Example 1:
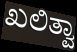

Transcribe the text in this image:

ಖಲಿತ್ವಾ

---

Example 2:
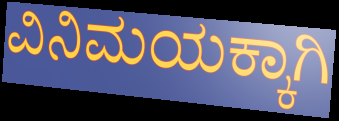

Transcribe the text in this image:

ವಿನಿಮಯಕ್ಕಾಗಿ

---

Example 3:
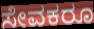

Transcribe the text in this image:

ಸೇವಕರೂ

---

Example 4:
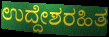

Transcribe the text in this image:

ಉದ್ದೇಶರಹಿತ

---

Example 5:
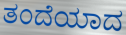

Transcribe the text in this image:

ತಂದೆಯಾದ